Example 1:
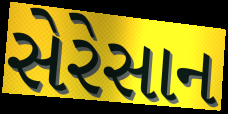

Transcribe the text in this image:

સેરેસાન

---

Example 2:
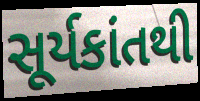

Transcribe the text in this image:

સૂર્યકાંતથી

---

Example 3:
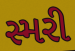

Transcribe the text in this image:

સ્મરી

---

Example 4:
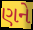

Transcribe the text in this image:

ણને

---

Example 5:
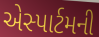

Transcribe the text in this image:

એસ્પાર્ટમની